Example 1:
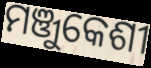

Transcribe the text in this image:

ମଞ୍ଜୁକେଶୀ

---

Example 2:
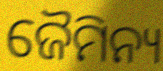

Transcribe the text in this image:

ଜୈମିନ୍ୟ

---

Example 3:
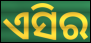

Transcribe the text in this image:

ଏସିର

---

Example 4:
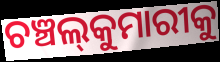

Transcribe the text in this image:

ଚଞ୍ଚଲ୍‍କୁମାରୀକୁ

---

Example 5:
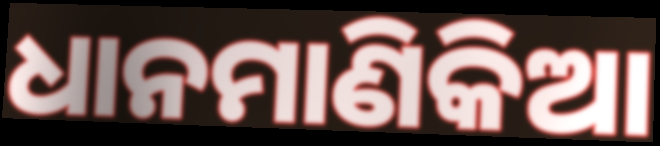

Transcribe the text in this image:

ଧାନମାଣିକିଆ